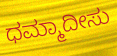
ಧಮ್ಮಾದೀಸು